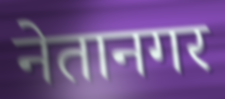
नेतानगर